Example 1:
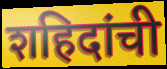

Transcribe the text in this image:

शहिदांची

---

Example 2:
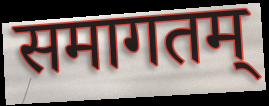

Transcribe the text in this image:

समागतम्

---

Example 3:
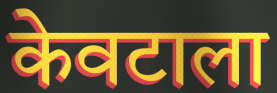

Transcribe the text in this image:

केवटाला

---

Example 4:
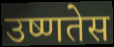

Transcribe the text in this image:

उष्णतेस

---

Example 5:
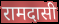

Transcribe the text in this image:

रामदासी